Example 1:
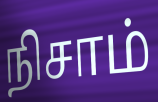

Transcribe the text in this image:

நிசாம்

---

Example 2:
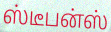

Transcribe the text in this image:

ஸ்டீபன்ஸ்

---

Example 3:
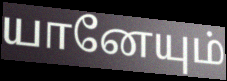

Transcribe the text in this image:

யானேயும்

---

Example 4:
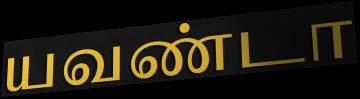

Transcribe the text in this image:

யவண்டா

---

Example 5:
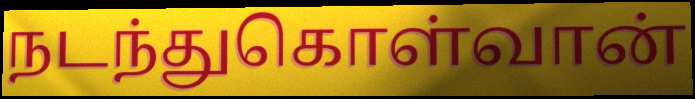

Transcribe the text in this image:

நடந்துகொள்வான்